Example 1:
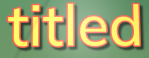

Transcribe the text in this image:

titled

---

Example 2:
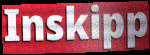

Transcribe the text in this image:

Inskipp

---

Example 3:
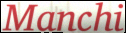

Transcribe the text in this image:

Manchi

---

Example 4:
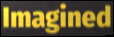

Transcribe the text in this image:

Imagined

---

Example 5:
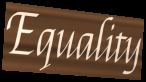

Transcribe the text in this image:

Equality